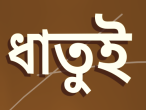
ধাতুই